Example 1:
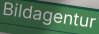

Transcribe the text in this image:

Bildagentur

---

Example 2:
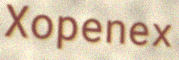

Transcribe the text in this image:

Xopenex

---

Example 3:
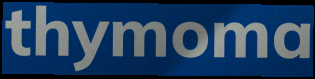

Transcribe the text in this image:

thymoma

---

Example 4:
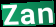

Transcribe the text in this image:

Zan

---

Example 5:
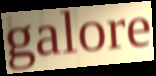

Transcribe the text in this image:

galore